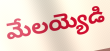
మేలయ్యెడి